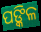
ପଙ୍କିଳ